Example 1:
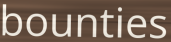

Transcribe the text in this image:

bounties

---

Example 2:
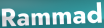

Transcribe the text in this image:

Rammad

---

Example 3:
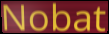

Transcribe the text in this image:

Nobat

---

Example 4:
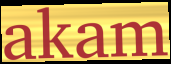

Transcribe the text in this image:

akam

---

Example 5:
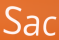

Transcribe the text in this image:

Sac